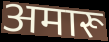
अमारू